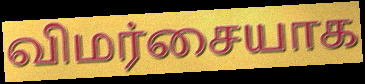
விமர்சையாக